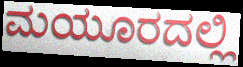
ಮಯೂರದಲ್ಲಿ